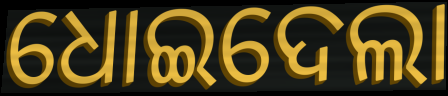
ଧୋଇଦେଲା